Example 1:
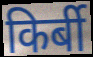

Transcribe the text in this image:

किर्बी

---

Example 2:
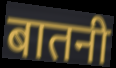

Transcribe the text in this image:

बातनी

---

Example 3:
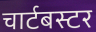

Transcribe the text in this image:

चार्टबस्टर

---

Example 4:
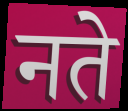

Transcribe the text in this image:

नते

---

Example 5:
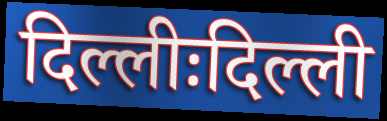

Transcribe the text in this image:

दिल्लीःदिल्ली